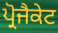
ਪ੍ਰੋਜੈਕੇਟ